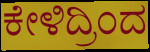
ಕೇಳಿದ್ರಿಂದ